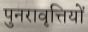
पुनरावृत्तियों